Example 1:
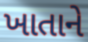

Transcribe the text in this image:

ખાતાને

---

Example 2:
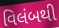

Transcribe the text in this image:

વિલંબથી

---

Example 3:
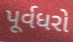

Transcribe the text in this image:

પૂર્વધરો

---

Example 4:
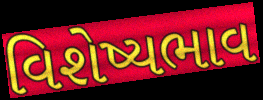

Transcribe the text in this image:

વિશેષ્યભાવ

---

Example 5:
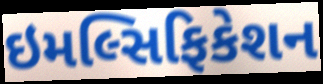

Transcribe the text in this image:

ઇમલ્સિફિકેશન